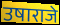
उषाराजे